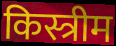
किस्त्रीम